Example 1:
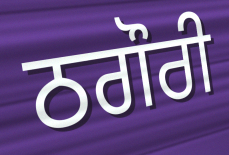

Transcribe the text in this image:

ਠਗੌਰੀ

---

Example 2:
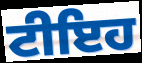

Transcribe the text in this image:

ਟੀਇਹ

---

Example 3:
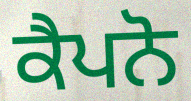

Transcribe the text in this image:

ਕੈਪਨੋ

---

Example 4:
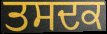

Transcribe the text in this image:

ਤਸਦਕ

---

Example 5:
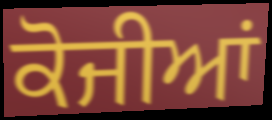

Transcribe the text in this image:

ਕੋਜੀਆਂ